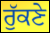
ਰੁੱਕਣੇ